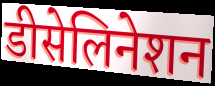
डीसेलिनेशन